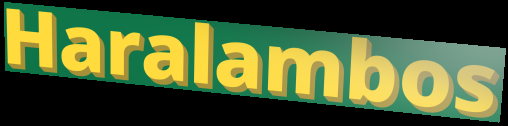
Haralambos